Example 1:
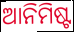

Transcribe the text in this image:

ଆନିମିଷ୍ଟ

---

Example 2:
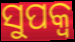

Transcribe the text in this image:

ସୁପକ୍ବ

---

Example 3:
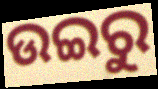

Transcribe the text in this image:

ଉଇରୁ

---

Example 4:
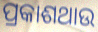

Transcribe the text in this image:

ପ୍ରକାଶଥାଉ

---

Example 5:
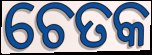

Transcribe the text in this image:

ଚେତକ